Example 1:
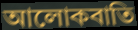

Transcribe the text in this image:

আলোকবাতি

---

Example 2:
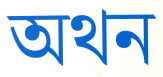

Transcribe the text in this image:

অথন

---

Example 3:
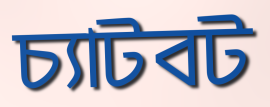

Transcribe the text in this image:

চ্যাটবট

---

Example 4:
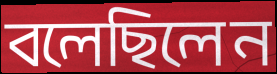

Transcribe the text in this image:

বলেছিলেন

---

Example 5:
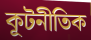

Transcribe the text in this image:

কূটনীতিক